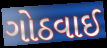
ગોઠવાઈ